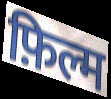
फ़िल्म